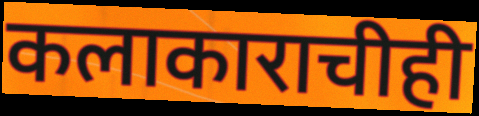
कलाकाराचीही